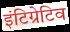
इंटिग्रेटिव